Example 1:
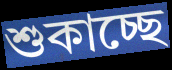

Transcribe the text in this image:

শুকাচ্ছে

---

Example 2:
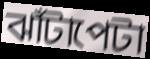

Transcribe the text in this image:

ঝাঁটাপেটা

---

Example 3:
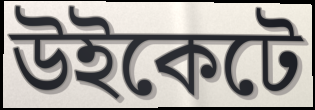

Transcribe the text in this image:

উইকেটে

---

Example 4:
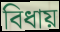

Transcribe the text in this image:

বিধায়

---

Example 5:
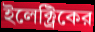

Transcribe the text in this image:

ইলেক্ট্রিকের